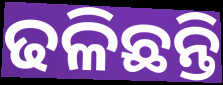
ଢଳିଛନ୍ତି